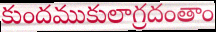
కుందముకులాగ్రదంతాం